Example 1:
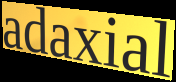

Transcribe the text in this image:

adaxial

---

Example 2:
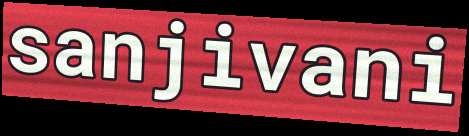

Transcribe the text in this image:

sanjivani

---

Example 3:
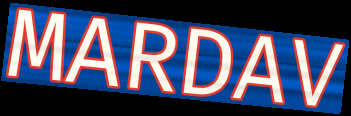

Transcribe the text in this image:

MARDAV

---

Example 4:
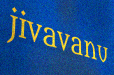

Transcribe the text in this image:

jivavanu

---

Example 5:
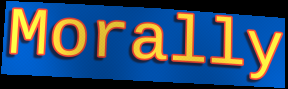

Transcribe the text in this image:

Morally